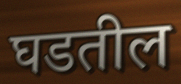
घडतील